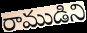
రాముడిని